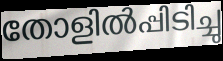
തോളിൽപ്പിടിച്ചു